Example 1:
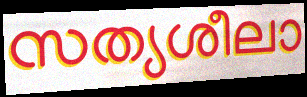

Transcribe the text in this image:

സത്യശീലാ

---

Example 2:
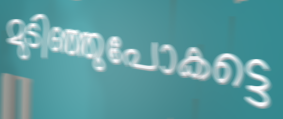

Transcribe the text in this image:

മുടിഞ്ഞുപോകട്ടെ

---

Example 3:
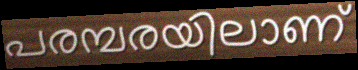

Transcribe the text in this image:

പരമ്പരയിലാണ്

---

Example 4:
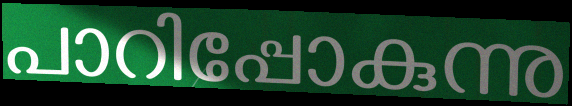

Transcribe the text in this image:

പാറിപ്പോകുന്നു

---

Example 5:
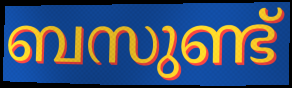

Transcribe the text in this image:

ബസുണ്ട്